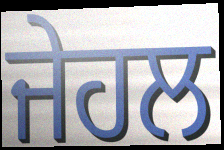
ਜੇਹਲ